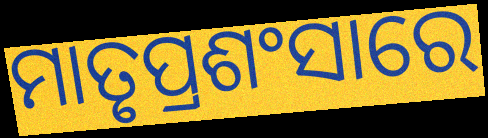
ମାତୃପ୍ରଶଂସାରେ